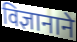
विज्ञानाने